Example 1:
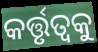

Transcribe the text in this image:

କର୍ତ୍ତୃତ୍ୱକୁ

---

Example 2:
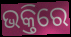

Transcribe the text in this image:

ଭକ୍ତିରେ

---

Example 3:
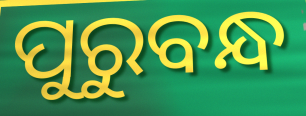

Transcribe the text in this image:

ପୁରୁବନ୍ଧ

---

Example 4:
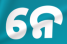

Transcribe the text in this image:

ନେ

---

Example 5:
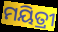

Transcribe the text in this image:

ମୟିତ୍ରୀ